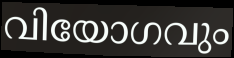
വിയോഗവും